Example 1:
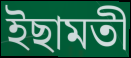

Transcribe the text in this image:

ইছামতী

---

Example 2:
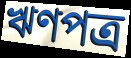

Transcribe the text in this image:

ঋণপত্র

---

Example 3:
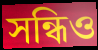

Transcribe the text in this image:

সন্ধিও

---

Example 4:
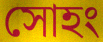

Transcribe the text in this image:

সোহং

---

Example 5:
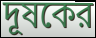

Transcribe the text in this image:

দূষকের